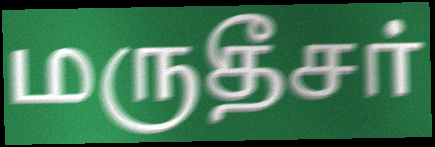
மருதீசர்